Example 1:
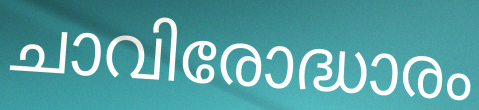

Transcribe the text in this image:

ചാവിരോദ്ധാരം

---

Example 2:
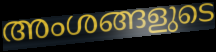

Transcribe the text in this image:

അംശങ്ങളുടെ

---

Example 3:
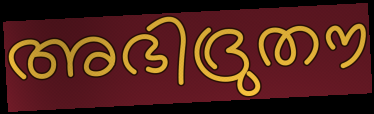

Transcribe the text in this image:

അഭിദ്രുതൗ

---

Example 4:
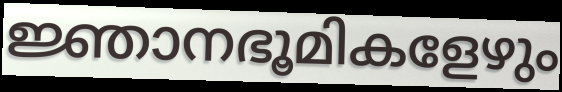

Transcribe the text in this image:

ജ്ഞാനഭൂമികളേഴും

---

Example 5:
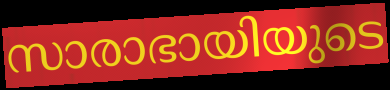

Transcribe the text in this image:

സാരാഭായിയുടെ